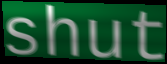
shut